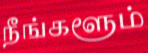
நீங்களூம்